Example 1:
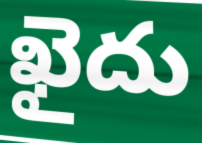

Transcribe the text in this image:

ఖైదు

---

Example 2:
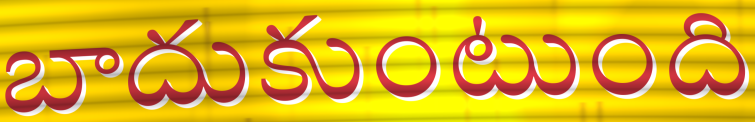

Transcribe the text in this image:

బాదుకుంటుంది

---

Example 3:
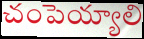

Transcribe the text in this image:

చంపెయ్యాలి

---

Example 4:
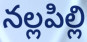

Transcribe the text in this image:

నల్లపిల్లి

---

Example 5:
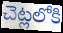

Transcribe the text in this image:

చెట్లలోకి